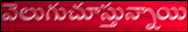
వెలుగుచూస్తున్నాయి